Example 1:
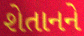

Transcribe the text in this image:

શેતાનને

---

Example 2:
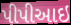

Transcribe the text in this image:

પીપીઆઇ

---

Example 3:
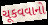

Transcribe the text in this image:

ચૂકવવાનો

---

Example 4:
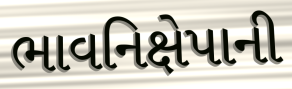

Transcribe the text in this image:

ભાવનિક્ષેપાની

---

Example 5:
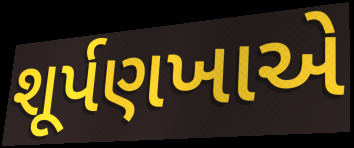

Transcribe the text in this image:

શૂર્પણખાએ